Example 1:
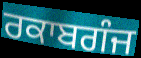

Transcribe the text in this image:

ਰਕਾਬਗੰਜ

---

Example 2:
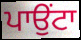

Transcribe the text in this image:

ਪਾਉਂਟਾ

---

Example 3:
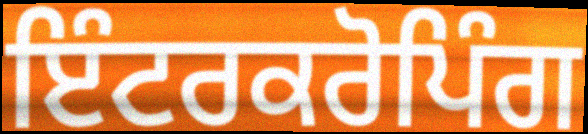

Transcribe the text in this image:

ਇੰਟਰਕਰੋਪਿੰਗ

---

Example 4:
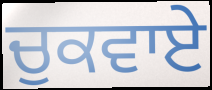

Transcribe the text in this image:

ਚੁਕਵਾਏ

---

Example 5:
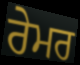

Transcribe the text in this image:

ਰੇਮਰ